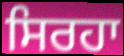
ਸਿਰਹਾ